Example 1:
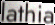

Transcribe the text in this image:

lathia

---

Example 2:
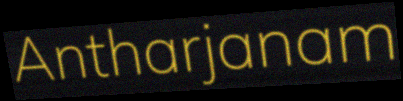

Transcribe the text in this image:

Antharjanam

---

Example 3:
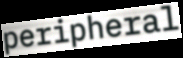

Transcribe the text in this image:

peripheral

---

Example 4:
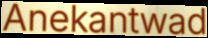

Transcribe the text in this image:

Anekantwad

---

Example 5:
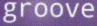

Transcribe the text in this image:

groove